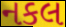
નકલ